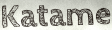
Katame